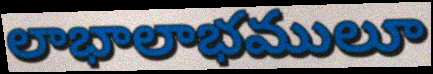
లాభాలాభములూ